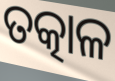
ତତ୍କାଳ